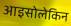
आइसोलेकिन